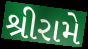
શ્રીરામે